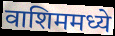
वाशिममध्ये